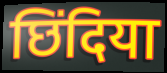
छिंदिया